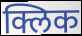
क्लिक